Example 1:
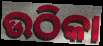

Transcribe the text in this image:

ଉଠିକା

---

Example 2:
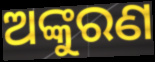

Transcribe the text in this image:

ଅଙ୍କୁରଣ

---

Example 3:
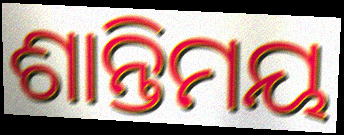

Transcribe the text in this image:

ଶାନ୍ତିମୟ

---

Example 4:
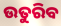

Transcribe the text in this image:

ଉତୁରିବ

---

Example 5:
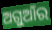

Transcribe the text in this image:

ଅଗୁଆଁର